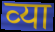
व्‍या